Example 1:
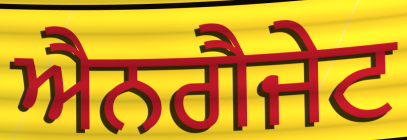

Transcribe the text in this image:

ਐਨਗੈਜੇਟ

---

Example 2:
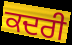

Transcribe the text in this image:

ਕਦਰੀ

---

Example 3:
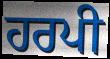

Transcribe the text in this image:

ਹਰਪੀ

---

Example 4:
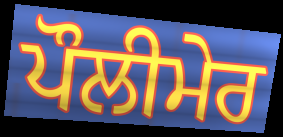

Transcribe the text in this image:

ਪੌਲੀਮੇਰ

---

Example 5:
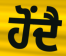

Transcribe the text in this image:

ਹੋਂਦੈ